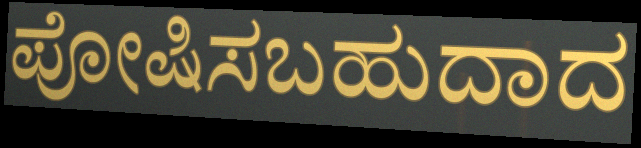
ಪೋಷಿಸಬಹುದಾದ